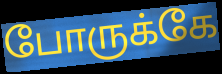
போருக்கே